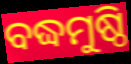
ବଦ୍ଧମୁଷ୍ଠି